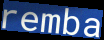
remba